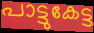
പാട്ടുകേട്ട